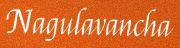
Nagulavancha